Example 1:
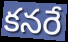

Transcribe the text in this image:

కనరే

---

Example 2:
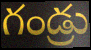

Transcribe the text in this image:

గండ్రు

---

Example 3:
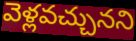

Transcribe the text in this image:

వెళ్లవచ్చునని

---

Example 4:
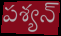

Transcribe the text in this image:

పశ్యన్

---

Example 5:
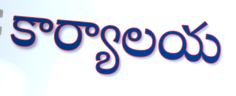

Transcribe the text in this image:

కార్యాలయ